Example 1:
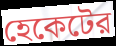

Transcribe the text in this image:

হেকেটের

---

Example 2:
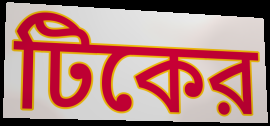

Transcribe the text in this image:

টিকের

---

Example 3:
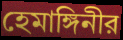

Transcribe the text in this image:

হেমাঙ্গিনীর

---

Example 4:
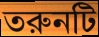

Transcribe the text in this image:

তরুনটি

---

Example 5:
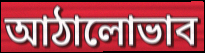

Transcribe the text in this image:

আঠালোভাব